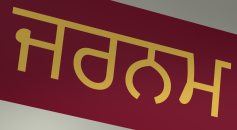
ਜਰਨਮ